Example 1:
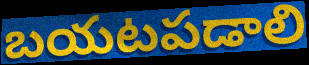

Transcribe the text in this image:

బయటపడాలి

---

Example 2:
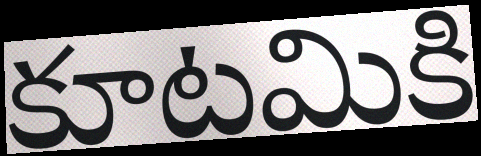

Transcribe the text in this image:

కూటమికి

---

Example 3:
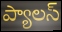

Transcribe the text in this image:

ప్యాలస్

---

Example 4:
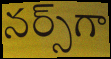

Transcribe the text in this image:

నర్స్‌గా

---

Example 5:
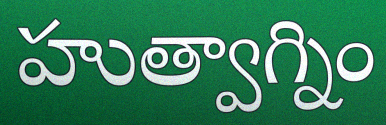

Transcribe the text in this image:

హుత్వాగ్నిం